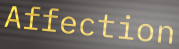
Affection